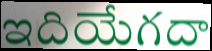
ఇదియేగదా